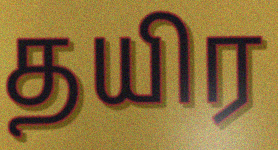
தயிர